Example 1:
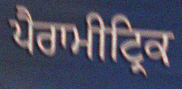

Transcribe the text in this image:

ਪੈਰਾਮੀਟ੍ਰਿਕ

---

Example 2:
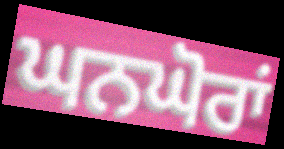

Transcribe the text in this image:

ਘਨਘੋਰਾਂ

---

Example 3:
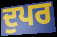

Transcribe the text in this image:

ਦੁਪਰ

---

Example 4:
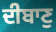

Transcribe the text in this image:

ਦੀਬਾਣੁ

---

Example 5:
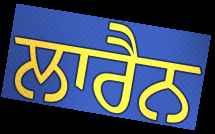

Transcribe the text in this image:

ਲਾਰੈਨ